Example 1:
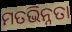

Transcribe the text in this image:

ମତଭିନ୍ନତା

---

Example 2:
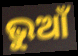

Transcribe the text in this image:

ଭୁଆଁ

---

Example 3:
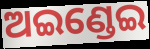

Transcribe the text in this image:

ଅଇଣ୍ଡେଇ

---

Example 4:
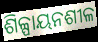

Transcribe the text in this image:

ଶିଳ୍ପାୟନଶୀଳ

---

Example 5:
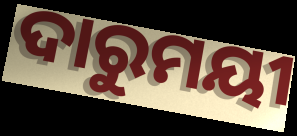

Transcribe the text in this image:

ଦାରୁମୟୀ